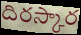
దిరస్కార